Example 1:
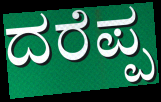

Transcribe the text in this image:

ದರೆಪ್ಪ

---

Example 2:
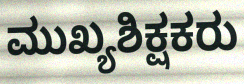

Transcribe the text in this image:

ಮುಖ್ಯಶಿಕ್ಷಕರು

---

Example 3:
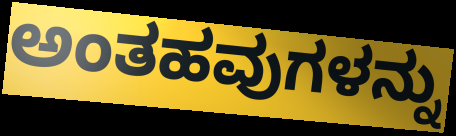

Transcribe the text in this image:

ಅಂತಹವುಗಳನ್ನು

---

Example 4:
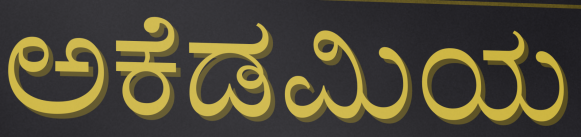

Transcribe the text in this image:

ಅಕೆಡಮಿಯ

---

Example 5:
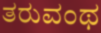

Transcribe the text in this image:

ತರುವಂಥ